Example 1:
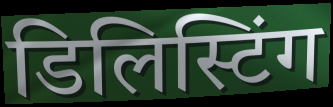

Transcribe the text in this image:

डिलिस्टिंग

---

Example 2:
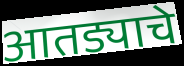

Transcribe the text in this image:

आतड्याचे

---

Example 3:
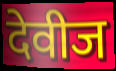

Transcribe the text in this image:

देवीज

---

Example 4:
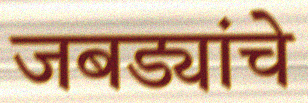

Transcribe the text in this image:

जबड्यांचे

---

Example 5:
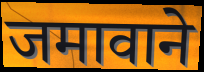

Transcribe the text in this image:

जमावाने